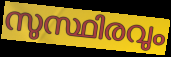
സുസ്ഥിരവും